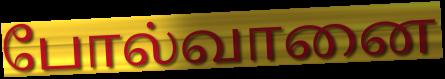
போல்வானை